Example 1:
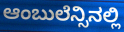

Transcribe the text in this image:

ಆಂಬುಲೆನ್ಸಿನಲ್ಲಿ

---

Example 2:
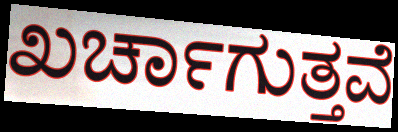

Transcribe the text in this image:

ಖರ್ಚಾಗುತ್ತವೆ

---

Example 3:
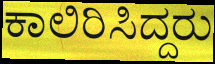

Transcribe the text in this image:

ಕಾಲಿರಿಸಿದ್ದರು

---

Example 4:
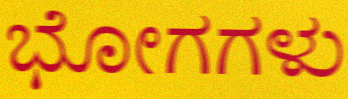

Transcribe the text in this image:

ಭೋಗಗಳು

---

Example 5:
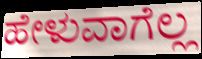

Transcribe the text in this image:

ಹೇಳುವಾಗೆಲ್ಲ